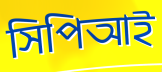
সিপিআই